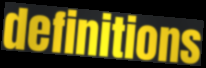
definitions